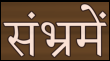
संभ्रमें